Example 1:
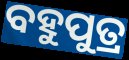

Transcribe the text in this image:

ବହୁପୁତ୍ର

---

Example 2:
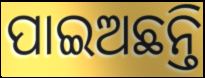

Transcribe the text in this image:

ପାଇଅଛନ୍ତି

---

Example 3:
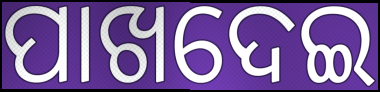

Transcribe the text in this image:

ପାଖଦେଇ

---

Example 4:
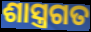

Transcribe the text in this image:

ଶାସ୍ତ୍ରଗତ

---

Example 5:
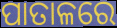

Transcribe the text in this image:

ପାତାଳରେ